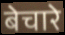
बेचारे